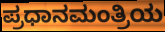
ಪ್ರಧಾನಮಂತ್ರಿಯ